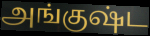
அங்குஷ்ட